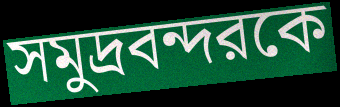
সমুদ্রবন্দরকে